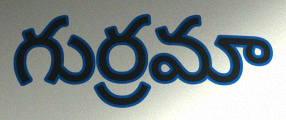
గుర్రమా